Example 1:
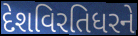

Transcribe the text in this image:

દેશવિરતિધરને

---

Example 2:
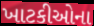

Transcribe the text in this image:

ખાટકીઓના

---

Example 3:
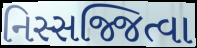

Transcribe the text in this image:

નિસ્સજ્જિત્વા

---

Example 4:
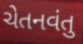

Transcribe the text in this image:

ચેતનવંતુ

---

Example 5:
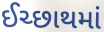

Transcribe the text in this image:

ઈચ્છાથમાં